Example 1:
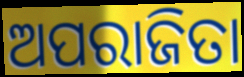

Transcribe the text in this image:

ଅପରାଜିତା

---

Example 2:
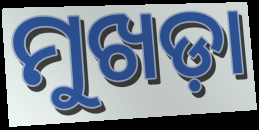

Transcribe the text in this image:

ମୁଖଡ଼ା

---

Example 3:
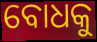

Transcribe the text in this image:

ବୋଧକୁ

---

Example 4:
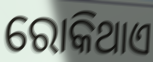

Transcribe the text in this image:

ରୋକିଥାଏ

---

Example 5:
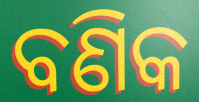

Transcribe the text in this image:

ବଣିକ